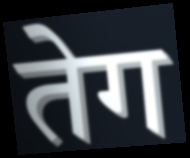
तेग